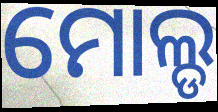
ମୋଲ୍ଡ